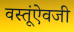
वस्तूंऐवजी